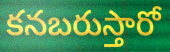
కనబరుస్తారో